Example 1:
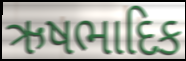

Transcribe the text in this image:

ઋષભાદિક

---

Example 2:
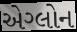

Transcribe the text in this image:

એગ્લોન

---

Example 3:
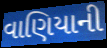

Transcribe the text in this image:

વાણિયાની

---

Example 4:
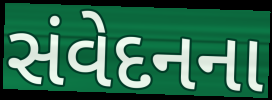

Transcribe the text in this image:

સંવેદનના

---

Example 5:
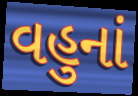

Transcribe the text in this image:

વહુનાં